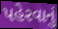
પહેરવાનું